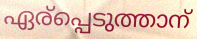
ഏര്പ്പെടുത്താന്